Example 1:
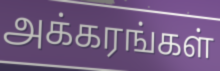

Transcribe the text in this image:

அக்கரங்கள்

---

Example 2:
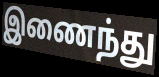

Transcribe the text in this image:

இணைந்து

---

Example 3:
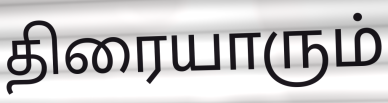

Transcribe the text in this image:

திரையாரும்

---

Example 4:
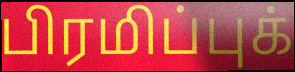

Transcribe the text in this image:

பிரமிப்புக்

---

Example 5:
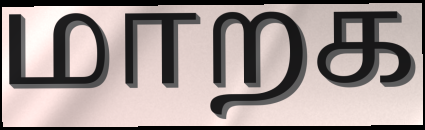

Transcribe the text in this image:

மாறக